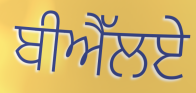
ਬੀਐੱਲਏ